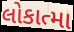
લોકાત્મા